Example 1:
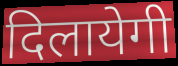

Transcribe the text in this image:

दिलायेगी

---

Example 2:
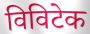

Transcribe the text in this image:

विविटेक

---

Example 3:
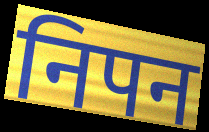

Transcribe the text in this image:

निपन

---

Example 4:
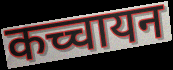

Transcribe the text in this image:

कच्चायन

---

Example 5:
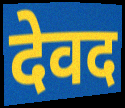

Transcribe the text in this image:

देवद